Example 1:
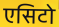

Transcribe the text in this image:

एसिटो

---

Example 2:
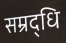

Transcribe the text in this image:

सम्रद्धि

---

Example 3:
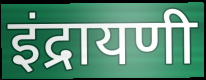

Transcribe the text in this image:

इंद्रायणी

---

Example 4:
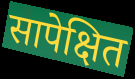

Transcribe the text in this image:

सापेक्षित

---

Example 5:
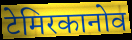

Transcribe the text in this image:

टेमिरकानोव